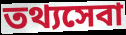
তথ্যসেবা